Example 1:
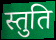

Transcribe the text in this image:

स्तुति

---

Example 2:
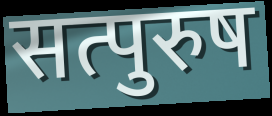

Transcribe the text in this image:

सत्पुरुष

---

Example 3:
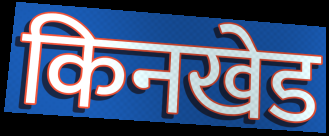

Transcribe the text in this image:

किनखेड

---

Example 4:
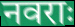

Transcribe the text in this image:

नवराः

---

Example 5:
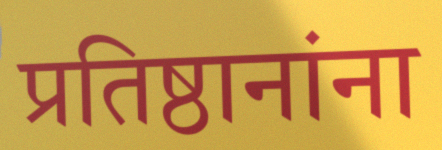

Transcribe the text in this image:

प्रतिष्ठानांना